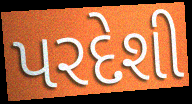
પરદેશી